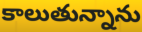
కాలుతున్నాను